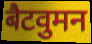
बैटवुमन